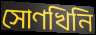
সোণখিনি